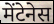
मेंटेनेस